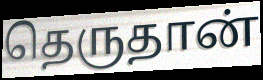
தெருதான்